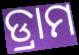
ଡ୍ରାମ